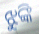
ଝୁଙ୍କି